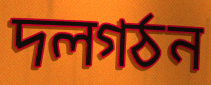
দলগঠন